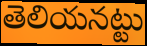
తెలియనట్టు